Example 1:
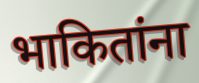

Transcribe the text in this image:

भाकितांना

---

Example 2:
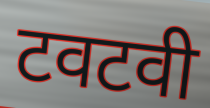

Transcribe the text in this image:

टवटवी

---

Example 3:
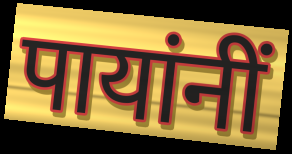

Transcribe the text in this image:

पायांनीं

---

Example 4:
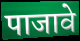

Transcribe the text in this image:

पाजावे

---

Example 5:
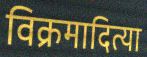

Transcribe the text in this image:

विक्रमादित्या